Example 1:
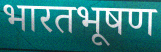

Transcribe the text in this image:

भारतभूषण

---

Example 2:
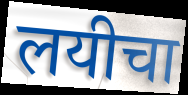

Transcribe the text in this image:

लयीचा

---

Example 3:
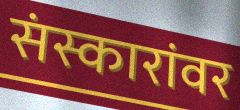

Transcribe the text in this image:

संस्कारांवर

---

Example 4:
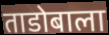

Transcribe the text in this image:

ताडोबाला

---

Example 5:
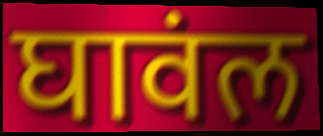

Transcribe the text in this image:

घावंल